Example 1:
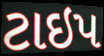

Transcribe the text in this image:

ટાઇપ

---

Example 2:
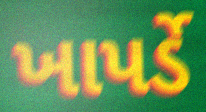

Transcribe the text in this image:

ખાપર્ડે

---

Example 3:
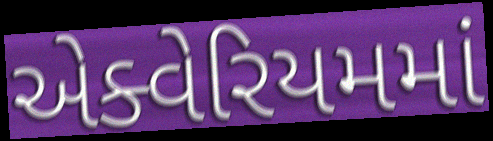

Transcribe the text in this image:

એક્વેરિયમમાં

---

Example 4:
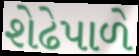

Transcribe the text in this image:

શેઢેપાળે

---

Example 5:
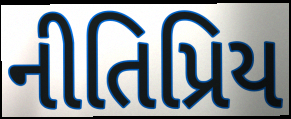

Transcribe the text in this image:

નીતિપ્રિય